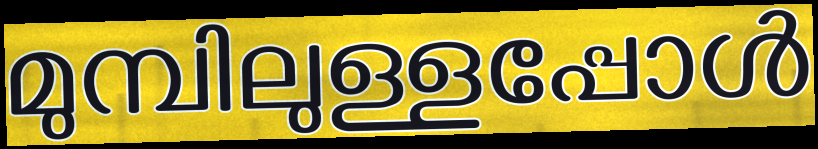
മുമ്പിലുള്ളപ്പോൾ